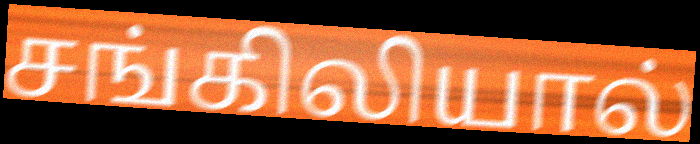
சங்கிலியால்